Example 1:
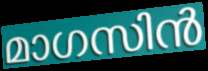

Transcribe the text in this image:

മാഗസിൻ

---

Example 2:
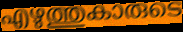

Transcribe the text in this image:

എഴുത്തുകാരുടെ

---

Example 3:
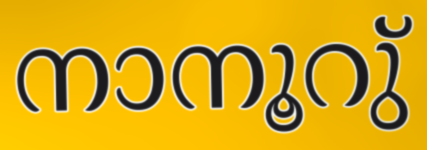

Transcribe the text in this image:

നാനൂറു്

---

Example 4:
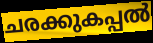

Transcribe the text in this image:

ചരക്കുകപ്പൽ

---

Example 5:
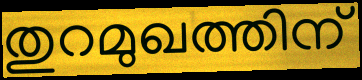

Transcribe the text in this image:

തുറമുഖത്തിന്